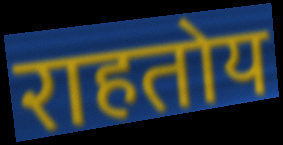
राहतोय